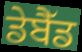
ਡੇਬੈੱਡ